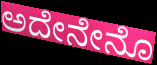
ಅದೇನೇನೊ